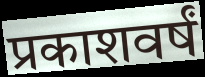
प्रकाशवर्षं